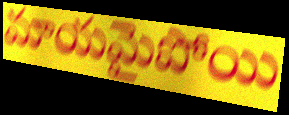
మాయమైపోయి